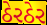
ઠેરઠેર